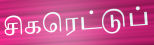
சிகரெட்டுப்